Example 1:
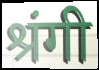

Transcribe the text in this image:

श्रंगी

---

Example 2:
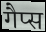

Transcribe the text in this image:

गैप्स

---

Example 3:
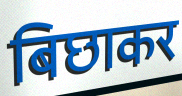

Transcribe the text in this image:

बिछाकर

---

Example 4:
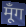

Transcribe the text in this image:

मूँग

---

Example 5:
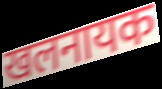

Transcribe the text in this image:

खलनायक